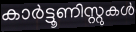
കാർട്ടൂണിസ്റ്റുകൾ